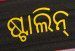
ଷ୍ଟାଲିନ୍